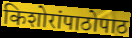
किशोरांपाठोपाठ